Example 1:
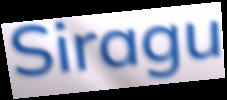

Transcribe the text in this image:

Siragu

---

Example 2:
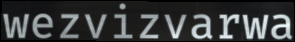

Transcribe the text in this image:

wezvizvarwa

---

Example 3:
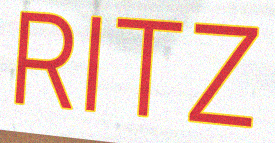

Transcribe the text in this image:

RITZ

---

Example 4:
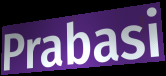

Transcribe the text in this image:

Prabasi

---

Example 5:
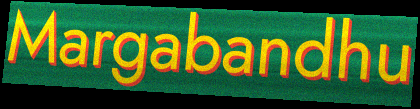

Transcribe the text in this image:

Margabandhu